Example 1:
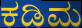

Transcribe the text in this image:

ಕಡಿಮ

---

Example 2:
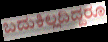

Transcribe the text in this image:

ಬದುಕಿಲ್ಲದಿದ್ದರೂ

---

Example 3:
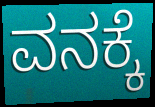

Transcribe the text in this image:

ವನಕ್ಕೆ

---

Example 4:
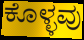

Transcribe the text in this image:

ಕೊಳ್ಳವು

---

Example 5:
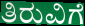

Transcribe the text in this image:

ತಿರುವಿಗೆ